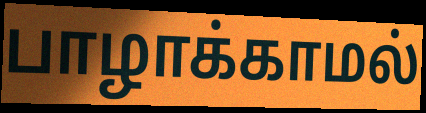
பாழாக்காமல்